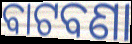
ବାଟବଣା